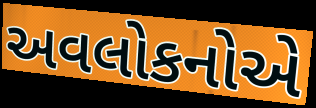
અવલોકનોએ